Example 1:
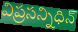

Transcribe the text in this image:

విప్రసన్నిధిన్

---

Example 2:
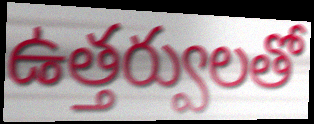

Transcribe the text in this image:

ఉత్తర్వులతో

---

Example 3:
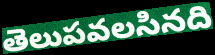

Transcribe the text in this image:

తెలుపవలసినది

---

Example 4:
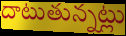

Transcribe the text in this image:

దాటుతున్నట్లు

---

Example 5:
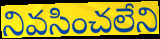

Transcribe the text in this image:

నివసించలేని